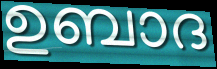
ഉബാദ